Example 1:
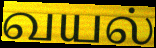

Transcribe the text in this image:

வயல்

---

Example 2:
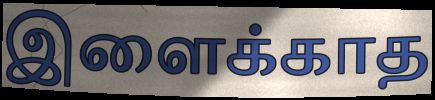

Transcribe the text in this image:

இளைக்காத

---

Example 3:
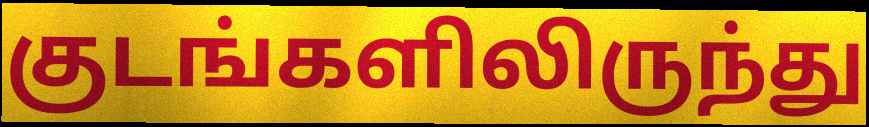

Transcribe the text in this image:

குடங்களிலிருந்து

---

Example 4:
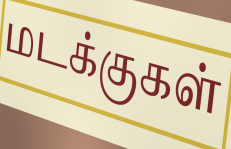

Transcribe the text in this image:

மடக்குகள்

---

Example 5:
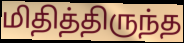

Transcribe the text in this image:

மிதித்திருந்த